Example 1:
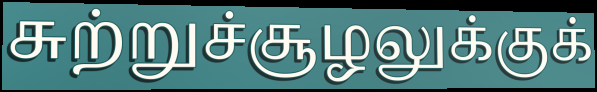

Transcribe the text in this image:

சுற்றுச்சூழலுக்குக்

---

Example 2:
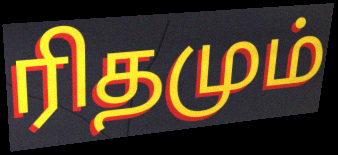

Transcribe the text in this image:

ரிதமும்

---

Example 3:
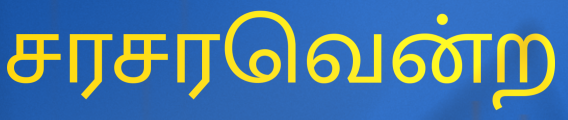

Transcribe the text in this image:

சரசரவென்ற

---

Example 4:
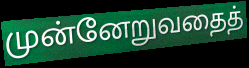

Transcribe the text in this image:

முன்னேறுவதைத்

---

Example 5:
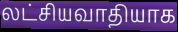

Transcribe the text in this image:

லட்சியவாதியாக